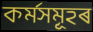
কৰ্মসমূহৰ